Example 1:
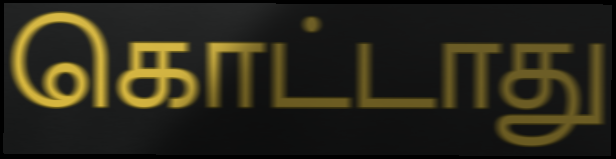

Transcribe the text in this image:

கொட்டாது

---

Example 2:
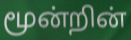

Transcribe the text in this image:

மூன்றின்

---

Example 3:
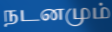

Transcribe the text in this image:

நடனமும்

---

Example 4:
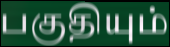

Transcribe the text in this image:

பகுதியும்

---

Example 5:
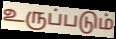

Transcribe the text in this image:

உருப்படும்